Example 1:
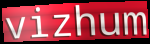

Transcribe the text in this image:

vizhum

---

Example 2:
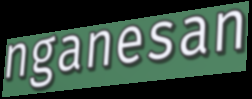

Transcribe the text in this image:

nganesan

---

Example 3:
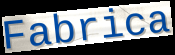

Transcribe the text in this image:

Fabrica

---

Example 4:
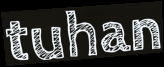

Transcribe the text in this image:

tuhan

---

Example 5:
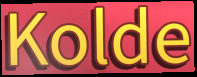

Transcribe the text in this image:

Kolde